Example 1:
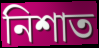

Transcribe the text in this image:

নিশাত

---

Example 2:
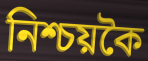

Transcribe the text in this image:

নিশ্চয়কৈ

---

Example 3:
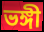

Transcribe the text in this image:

ভঙ্গী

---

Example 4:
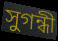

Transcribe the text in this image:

সুগন্ধী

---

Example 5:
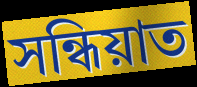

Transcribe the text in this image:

সন্ধিয়াত